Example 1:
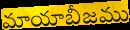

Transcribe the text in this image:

మాయాబీజము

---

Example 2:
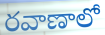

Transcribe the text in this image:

రవాణాలో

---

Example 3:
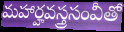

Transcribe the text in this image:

మహార్హవస్త్రసంవీతో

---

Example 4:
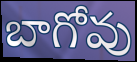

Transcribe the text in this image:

బాగోవు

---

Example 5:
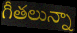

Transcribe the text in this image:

గీతలున్నా